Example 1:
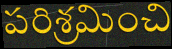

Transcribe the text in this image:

పరిశ్రమించి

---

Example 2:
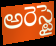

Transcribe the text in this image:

అరెస్టై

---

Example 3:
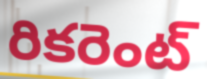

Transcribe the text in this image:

రికరెంట్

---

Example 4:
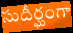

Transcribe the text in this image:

సుదీర్ఘంగా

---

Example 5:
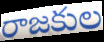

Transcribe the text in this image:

రాజకుల